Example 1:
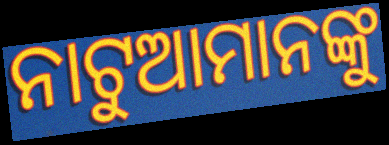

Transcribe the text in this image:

ନାଟୁଆମାନଙ୍କୁ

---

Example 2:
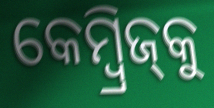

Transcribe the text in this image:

କେମ୍ୱ୍ରିଜ୍‌କୁ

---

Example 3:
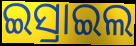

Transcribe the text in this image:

ଇସ୍ରାଇଲ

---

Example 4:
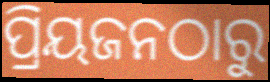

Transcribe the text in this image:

ପ୍ରିୟଜନଠାରୁ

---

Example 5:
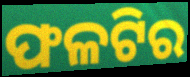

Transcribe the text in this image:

ଫଳଟିର